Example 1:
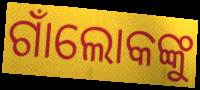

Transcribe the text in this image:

ଗାଁଲୋକଙ୍କୁ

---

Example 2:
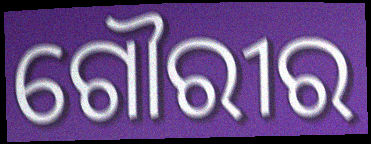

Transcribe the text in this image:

ଗୌରୀର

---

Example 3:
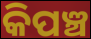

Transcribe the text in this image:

କିପଞ୍ଚ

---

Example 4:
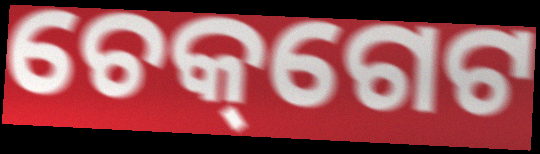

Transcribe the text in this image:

ଚେକ୍‌ଗେଟ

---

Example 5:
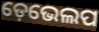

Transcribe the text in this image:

ଡ଼େଭେଲପ